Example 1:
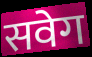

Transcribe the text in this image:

सवेग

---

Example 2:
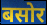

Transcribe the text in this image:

बसोर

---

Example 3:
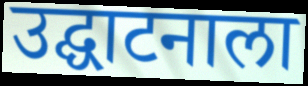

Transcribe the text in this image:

उद्घाटनाला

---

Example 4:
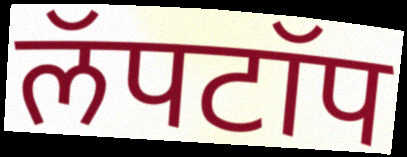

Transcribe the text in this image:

लॅपटॉप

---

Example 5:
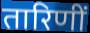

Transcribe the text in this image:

तारिणीं